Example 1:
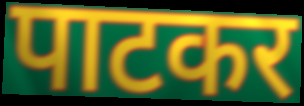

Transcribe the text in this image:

पाटकर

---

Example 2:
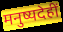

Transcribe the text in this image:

मनुष्यदेहीं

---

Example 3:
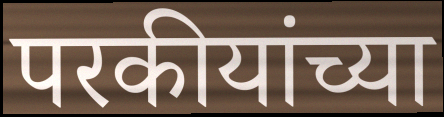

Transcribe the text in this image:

परकीयांच्या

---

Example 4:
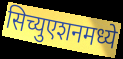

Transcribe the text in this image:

सिच्युएशनमध्ये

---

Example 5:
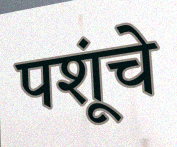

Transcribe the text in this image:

पशूंचे